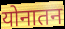
योनातन